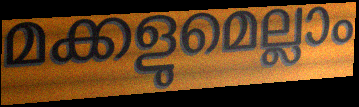
മക്കളുമെല്ലാം